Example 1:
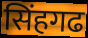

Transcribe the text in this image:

सिंहगढ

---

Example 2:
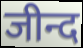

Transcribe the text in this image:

जीन्द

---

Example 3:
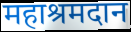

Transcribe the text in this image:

महाश्रमदान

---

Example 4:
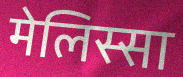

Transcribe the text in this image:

मेलिस्सा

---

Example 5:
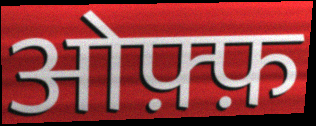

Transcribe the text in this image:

ओफ़्फ़